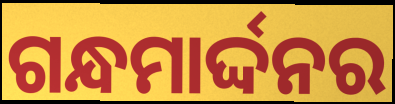
ଗନ୍ଧମାର୍ଦ୍ଦନର